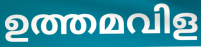
ഉത്തമവിള